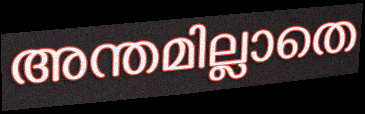
അന്തമില്ലാതെ